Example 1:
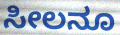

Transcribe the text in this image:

ಸೀಲನೂ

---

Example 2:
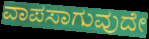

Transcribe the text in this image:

ವಾಪಸಾಗುವುದೇ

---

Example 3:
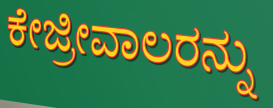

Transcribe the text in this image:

ಕೇಜ್ರೀವಾಲರನ್ನು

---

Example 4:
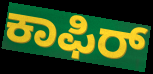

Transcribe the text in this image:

ಕಾಫಿರ್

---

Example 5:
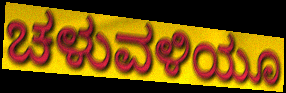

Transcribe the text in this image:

ಚಳುವಳಿಯೂ